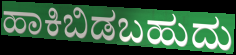
ಹಾಕಿಬಿಡಬಹುದು